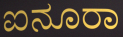
ಐನೂರಾ